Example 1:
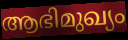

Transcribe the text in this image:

ആഭിമുഖ്യം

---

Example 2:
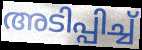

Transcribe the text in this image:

അടിപ്പിച്ച്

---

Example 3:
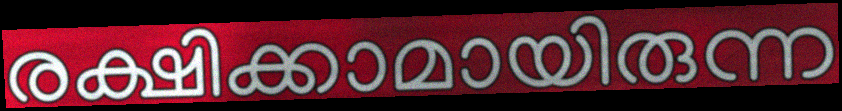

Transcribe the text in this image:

രക്ഷിക്കാമായിരുന്ന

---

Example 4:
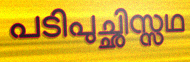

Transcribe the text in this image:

പടിപുച്ഛിസ്സഥ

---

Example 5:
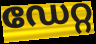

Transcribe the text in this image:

ഡേറ്റ